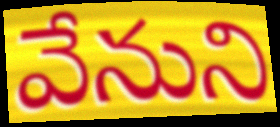
వేనుని